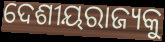
ଦେଶୀୟରାଜ୍ୟକୁ